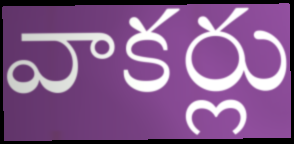
వాకర్లు